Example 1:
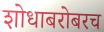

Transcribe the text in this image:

शोधाबरोबरच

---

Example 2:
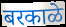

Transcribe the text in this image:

बरकाळे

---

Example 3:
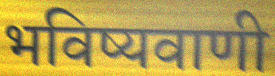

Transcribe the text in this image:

भविष्यवाणी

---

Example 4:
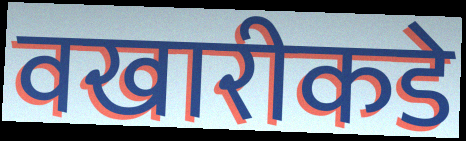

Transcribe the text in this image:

वखारीकडे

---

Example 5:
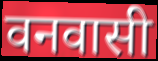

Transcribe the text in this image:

वनवासी